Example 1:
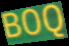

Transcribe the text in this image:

BOQ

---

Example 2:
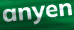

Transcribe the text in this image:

anyen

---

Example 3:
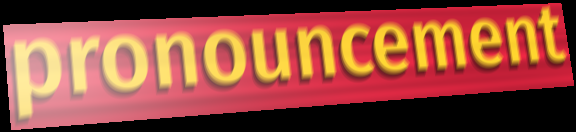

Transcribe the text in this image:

pronouncement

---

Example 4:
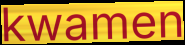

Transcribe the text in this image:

kwamen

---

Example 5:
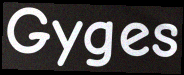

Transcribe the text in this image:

Gyges